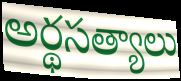
అర్థసత్యాలు